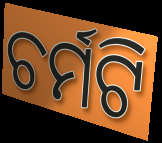
ଚର୍ମଟି